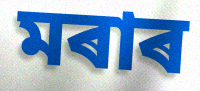
মৰাৰ